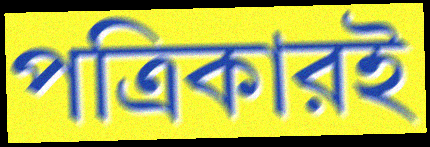
পত্রিকারই